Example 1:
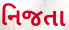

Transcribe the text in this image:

નિજતા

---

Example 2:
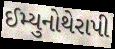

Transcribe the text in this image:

ઈમ્યુનોથેરાપી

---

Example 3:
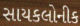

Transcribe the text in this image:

સાયકલોનીક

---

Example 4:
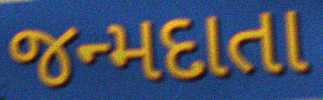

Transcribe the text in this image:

જન્મદાતા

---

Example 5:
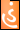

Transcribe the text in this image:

હં